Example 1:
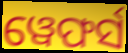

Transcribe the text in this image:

ୱେଫର୍ସ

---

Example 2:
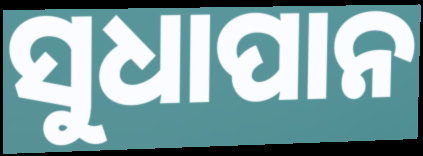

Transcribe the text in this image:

ସୁଧାପାନ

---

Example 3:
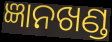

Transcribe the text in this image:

ଜ୍ଞାନଖଣ୍ଡ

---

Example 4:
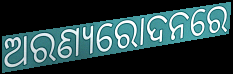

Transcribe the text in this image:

ଅରଣ୍ୟରୋଦନରେ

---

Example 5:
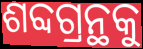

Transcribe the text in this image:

ଶବ୍ଦଗ୍ରନ୍ଥକୁ